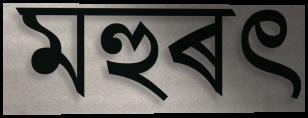
মহুৰৎ